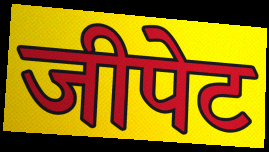
जीपेट